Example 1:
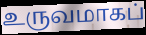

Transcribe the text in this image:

உருவமாகப்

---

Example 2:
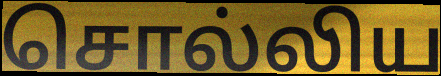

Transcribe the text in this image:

சொல்லிய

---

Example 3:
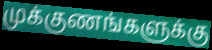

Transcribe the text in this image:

முக்குணங்களுக்கு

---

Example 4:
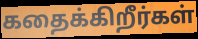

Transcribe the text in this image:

கதைக்கிறீர்கள்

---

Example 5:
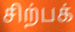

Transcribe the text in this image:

சிற்பக்